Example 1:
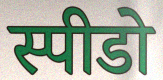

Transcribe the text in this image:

स्पीडो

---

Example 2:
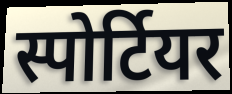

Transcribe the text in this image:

स्पोर्टियर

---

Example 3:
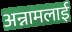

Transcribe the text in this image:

अन्नामलाई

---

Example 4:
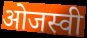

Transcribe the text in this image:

ओजस्वी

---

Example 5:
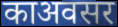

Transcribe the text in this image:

काअवसर